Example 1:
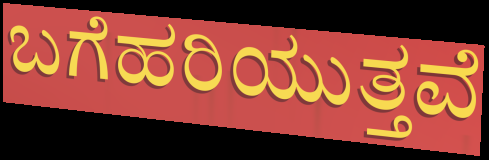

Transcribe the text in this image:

ಬಗೆಹರಿಯುತ್ತವೆ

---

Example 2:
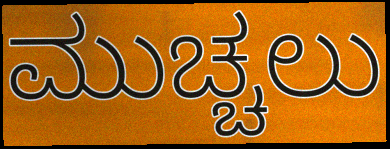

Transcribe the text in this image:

ಮುಚ್ಚಲು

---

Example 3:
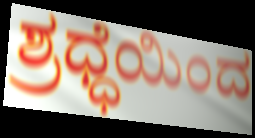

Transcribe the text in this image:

ಶ್ರಧ್ಧೆಯಿಂದ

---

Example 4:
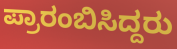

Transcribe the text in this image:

ಪ್ರಾರಂಬಿಸಿದ್ದರು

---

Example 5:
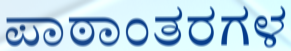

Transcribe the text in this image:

ಪಾಠಾಂತರಗಳ